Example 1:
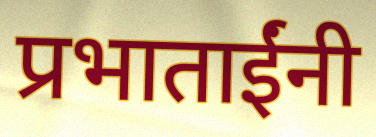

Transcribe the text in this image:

प्रभाताईंनी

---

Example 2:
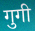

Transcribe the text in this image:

गुगी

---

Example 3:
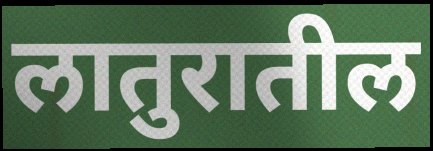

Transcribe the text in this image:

लातुरातील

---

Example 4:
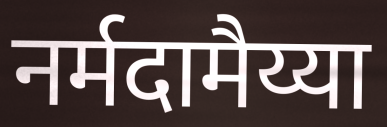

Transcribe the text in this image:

नर्मदामैय्या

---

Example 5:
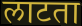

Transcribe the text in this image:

लाटता